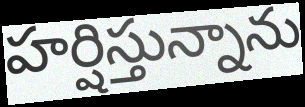
హర్షిస్తున్నాను